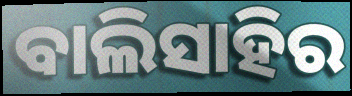
ବାଲିସାହିର